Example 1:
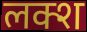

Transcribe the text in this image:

लक्श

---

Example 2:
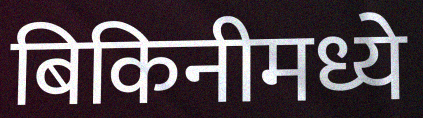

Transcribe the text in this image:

बिकिनीमध्ये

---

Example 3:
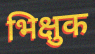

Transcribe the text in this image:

भिक्षुक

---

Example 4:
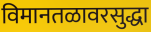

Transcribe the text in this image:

विमानतळावरसुद्धा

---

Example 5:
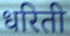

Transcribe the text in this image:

धरिती